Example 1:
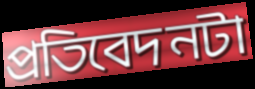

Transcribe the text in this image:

প্রতিবেদনটা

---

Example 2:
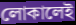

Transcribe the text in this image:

লোকালেই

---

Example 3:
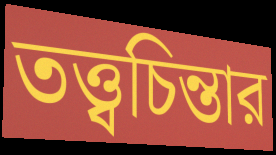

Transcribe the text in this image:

তত্ত্বচিন্তার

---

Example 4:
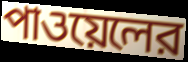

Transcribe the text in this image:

পাওয়েলের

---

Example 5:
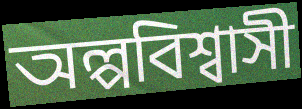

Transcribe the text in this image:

অল্পবিশ্বাসী